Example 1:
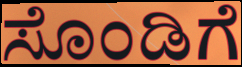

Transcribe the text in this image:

ಸೊಂಡಿಗೆ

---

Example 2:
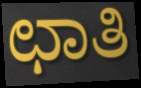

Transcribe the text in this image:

ಛಾತಿ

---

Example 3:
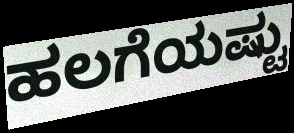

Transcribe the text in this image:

ಹಲಗೆಯಷ್ಟು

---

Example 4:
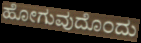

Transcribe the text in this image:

ಹೋಗುವುದೊಂದು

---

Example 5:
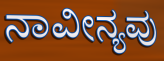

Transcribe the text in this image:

ನಾವೀನ್ಯವು